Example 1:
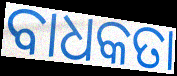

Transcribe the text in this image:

ବାଧକତା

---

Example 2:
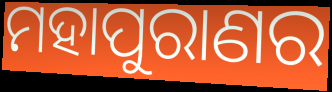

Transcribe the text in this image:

ମହାପୁରାଣର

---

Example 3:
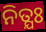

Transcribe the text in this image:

ନିତ୍ଯଃ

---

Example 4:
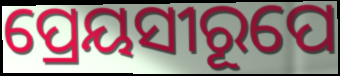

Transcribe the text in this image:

ପ୍ରେୟସୀରୂପେ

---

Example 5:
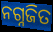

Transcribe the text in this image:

ନଗ୍ନଜିତ